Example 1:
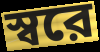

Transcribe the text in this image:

স্বরে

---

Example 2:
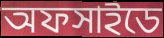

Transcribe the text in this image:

অফসাইডে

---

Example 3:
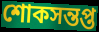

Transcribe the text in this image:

শোকসন্তপ্ত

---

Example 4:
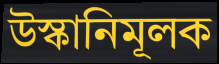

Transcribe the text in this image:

উস্কানিমূলক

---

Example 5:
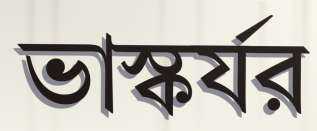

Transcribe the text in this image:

ভাস্কর্যর